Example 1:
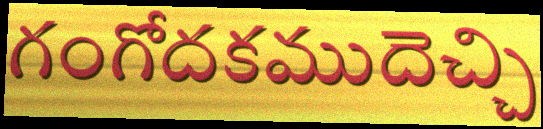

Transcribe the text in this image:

గంగోదకముదెచ్చి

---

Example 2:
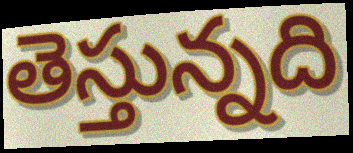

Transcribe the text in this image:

తెస్తున్నది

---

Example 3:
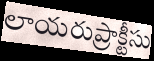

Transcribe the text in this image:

లాయరుప్రాక్టీసు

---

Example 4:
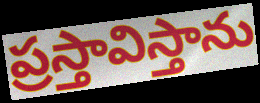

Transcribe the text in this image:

ప్రస్తావిస్తాను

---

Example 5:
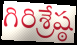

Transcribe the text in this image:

గిరిశ్రేష్ఠ